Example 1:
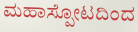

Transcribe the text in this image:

ಮಹಾಸ್ಪೋಟದಿಂದ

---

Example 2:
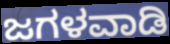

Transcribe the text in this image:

ಜಗಳವಾಡಿ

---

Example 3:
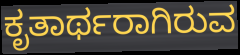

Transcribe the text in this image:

ಕೃತಾರ್ಥರಾಗಿರುವ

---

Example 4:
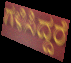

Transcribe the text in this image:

ಗಳಿಸಿದ್ದರೆ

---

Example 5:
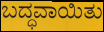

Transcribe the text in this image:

ಬದ್ಧವಾಯಿತು